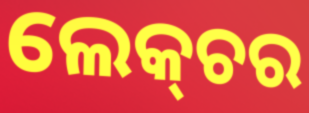
ଲେକ୍‍ଚର